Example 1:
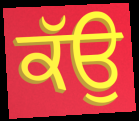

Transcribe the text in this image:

ਕੱਉ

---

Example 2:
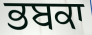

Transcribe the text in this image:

ਭਬਕਾ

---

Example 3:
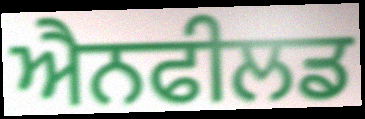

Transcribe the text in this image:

ਐਨਫੀਲਡ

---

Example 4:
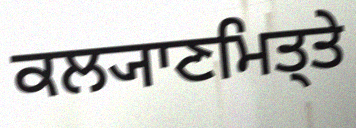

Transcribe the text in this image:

ਕਲ੍ਯਾਣਮਿਤ੍ਤੇ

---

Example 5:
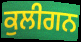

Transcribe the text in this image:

ਕੁਲੀਗਨ